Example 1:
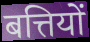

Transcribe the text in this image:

बत्तियों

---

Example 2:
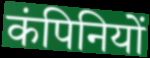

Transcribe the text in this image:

कंपिनियों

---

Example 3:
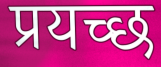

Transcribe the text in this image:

प्रयच्छ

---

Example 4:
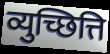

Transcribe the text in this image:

व्युच्छित्ति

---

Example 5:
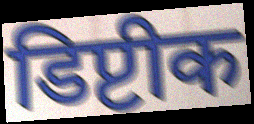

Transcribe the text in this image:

डिप्टीक